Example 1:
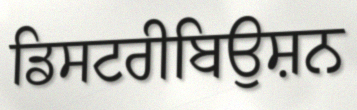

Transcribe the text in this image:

ਡਿਸਟਰੀਬਿਉਸ਼ਨ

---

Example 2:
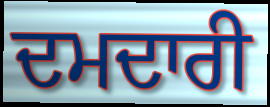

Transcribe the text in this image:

ਦਮਦਾਰੀ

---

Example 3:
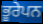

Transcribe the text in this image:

ਭੂਰੇਪਨ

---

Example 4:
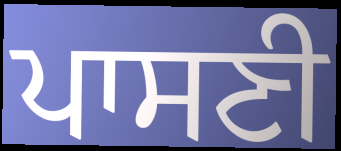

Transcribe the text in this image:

ਪਾਸਣੀ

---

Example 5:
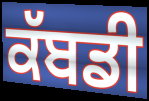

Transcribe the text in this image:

ਕੱਬਡੀ